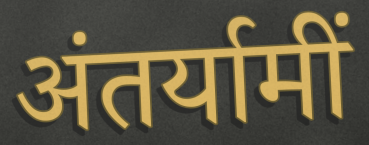
अंतर्यामीं